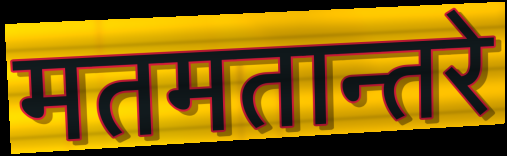
मतमतान्तरे